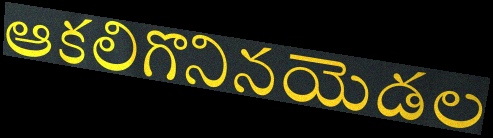
ఆకలిగొనినయెడల